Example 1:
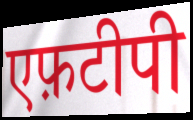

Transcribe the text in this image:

एफ़टीपी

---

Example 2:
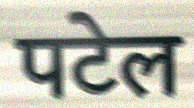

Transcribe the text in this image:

पटेल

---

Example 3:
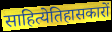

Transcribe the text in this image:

साहित्येतिहासकारों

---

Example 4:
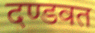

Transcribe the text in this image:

दण्‍डवत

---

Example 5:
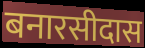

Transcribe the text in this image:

बनारसीदास